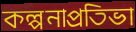
কল্পনাপ্রতিভা